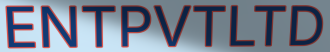
ENTPVTLTD